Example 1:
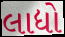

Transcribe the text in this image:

લાદ્યો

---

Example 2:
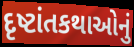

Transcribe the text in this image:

દૃષ્ટાંતકથાઓનું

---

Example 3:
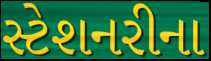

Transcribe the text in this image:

સ્ટેશનરીના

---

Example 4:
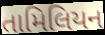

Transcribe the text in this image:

તામિલિયન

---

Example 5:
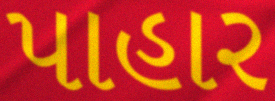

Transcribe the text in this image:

પાહાર